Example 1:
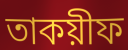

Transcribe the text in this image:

তাকয়ীফ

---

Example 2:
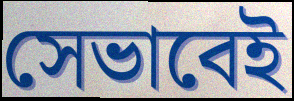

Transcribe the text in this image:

সেভাবেই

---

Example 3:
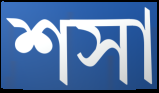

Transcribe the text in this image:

শসা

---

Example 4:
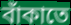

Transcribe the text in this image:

বাঁকাতে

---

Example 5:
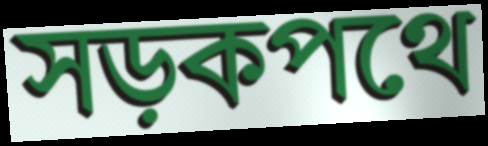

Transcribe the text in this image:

সড়কপথে